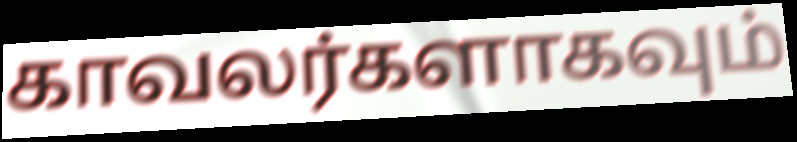
காவலர்களாகவும்